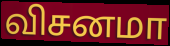
விசனமா